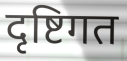
दृष्टिगत